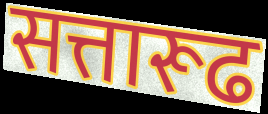
सत्तारूढ